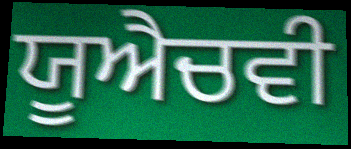
ਯੂਐਚਵੀ